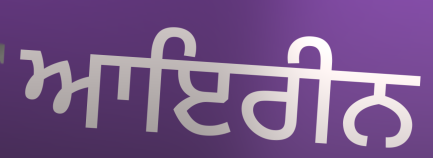
ਆਇਰੀਨ